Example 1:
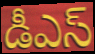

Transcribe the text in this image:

డీఎస్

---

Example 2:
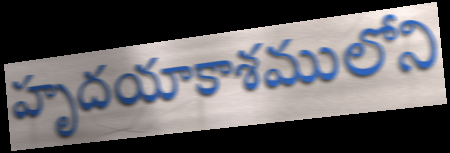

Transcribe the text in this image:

హృదయాకాశములోని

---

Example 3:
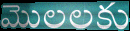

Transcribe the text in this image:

మొలలకు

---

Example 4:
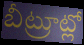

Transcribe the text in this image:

బీట్రూట్లో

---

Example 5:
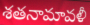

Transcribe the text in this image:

శతనామావళీ